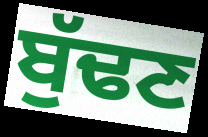
ਬੁੱਢਣ